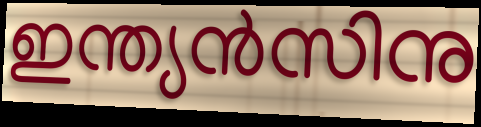
ഇന്ത്യൻസിനു